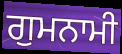
ਗੁਮਨਾਮੀ